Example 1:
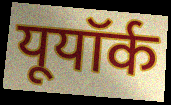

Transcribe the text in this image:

यूयॉर्क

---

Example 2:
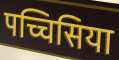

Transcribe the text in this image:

पच्चिसिया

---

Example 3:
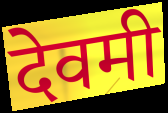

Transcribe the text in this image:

देवमी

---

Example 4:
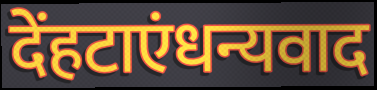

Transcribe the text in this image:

देंहटाएंधन्यवाद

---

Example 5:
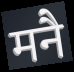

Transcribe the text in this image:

मनै